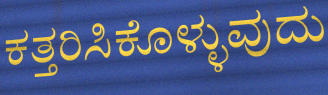
ಕತ್ತರಿಸಿಕೊಳ್ಳುವುದು